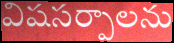
విషసర్పాలను